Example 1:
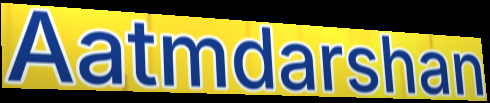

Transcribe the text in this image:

Aatmdarshan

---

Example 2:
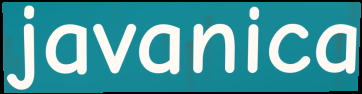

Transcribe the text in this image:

javanica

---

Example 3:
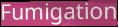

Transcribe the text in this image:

Fumigation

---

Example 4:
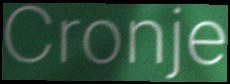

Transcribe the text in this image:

Cronje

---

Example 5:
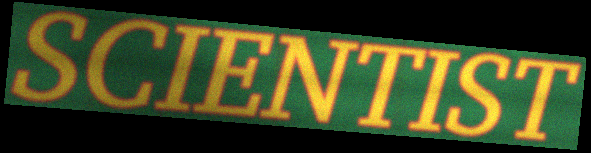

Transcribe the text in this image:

SCIENTIST